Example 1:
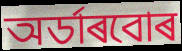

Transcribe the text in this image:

অৰ্ডাৰবোৰ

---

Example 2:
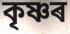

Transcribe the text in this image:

কৃষ্ণৰ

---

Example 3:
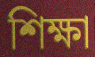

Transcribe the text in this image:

শিক্ষা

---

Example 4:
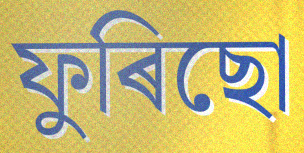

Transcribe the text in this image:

ফুৰিছো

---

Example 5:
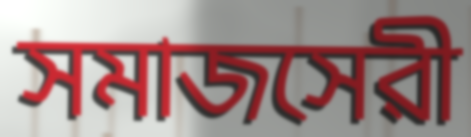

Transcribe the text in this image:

সমাজসেৱী